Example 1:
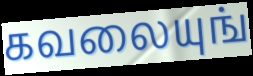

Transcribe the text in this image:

கவலையுங்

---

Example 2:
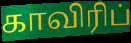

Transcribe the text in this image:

காவிரிப்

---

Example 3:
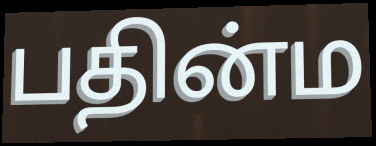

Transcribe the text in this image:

பதின்ம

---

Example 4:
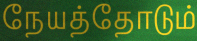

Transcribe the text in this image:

நேயத்தோடும்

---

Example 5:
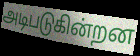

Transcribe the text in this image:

அடிபடுகின்றன